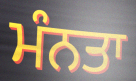
ਮੰਨਤਾ